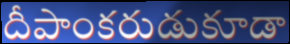
దీపాంకరుడుకూడా